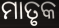
ମାତୃକ